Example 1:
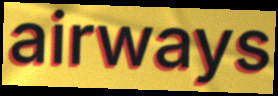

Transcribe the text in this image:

airways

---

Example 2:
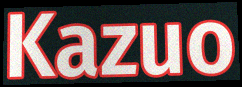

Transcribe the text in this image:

Kazuo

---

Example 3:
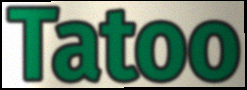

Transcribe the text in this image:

Tatoo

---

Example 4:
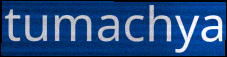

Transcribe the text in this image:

tumachya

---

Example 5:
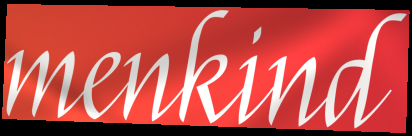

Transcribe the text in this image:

menkind